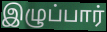
இழுப்பார்